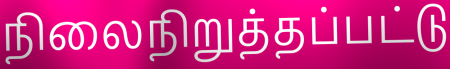
நிலைநிறுத்தப்பட்டு